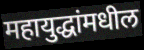
महायुद्धांमधील